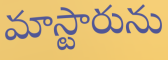
మాస్టారును